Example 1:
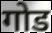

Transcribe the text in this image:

गोड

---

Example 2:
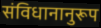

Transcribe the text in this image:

संविधानानुरूप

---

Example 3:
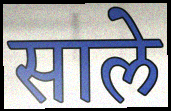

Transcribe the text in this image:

साले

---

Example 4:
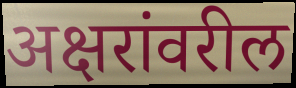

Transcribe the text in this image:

अक्षरांवरील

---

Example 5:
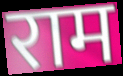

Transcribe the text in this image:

राम